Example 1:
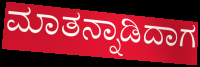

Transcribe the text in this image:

ಮಾತನ್ನಾಡಿದಾಗ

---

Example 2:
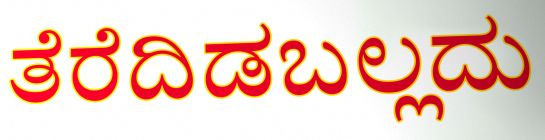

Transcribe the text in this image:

ತೆರೆದಿಡಬಲ್ಲದು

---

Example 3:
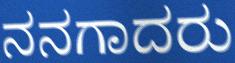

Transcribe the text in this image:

ನನಗಾದರು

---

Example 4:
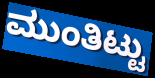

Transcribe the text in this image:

ಮುಂತಿಟ್ಟು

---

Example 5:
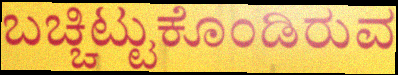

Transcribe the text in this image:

ಬಚ್ಚಿಟ್ಟುಕೊಂಡಿರುವ